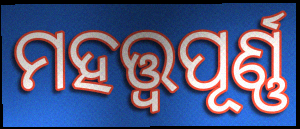
ମହତ୍ତ୍ୱପୂର୍ଣ୍ଣ